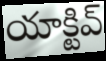
యాక్టివ్